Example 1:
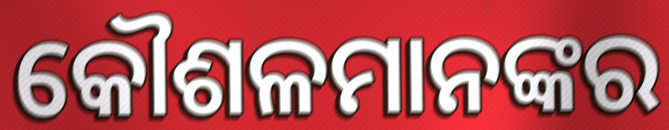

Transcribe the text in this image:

କୌଶଳମାନଙ୍କର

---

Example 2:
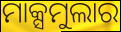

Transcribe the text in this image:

ମାକ୍ସମୁଲାର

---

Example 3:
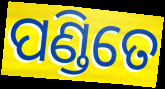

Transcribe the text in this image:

ପଣ୍ଡିତେ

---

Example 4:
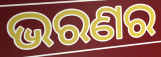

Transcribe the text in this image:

ଭରଣର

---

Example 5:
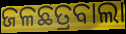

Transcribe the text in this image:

ଜଳଛତ୍ରବାଲା